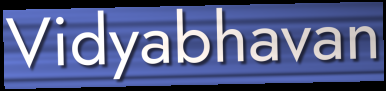
Vidyabhavan